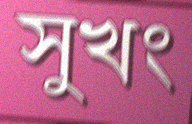
সুখং